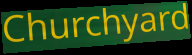
Churchyard